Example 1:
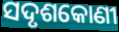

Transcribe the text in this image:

ସଦୃଶକୋଣୀ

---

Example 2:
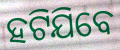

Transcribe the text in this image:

ହଟିଯିବେ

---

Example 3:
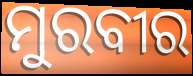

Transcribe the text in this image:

ମୁରବୀର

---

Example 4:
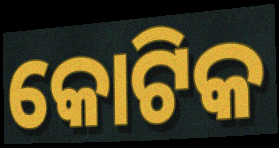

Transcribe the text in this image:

କୋଟିକ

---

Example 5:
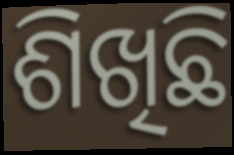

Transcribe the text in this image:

ଶିଖିଛି